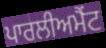
ਪਾਰਲੀਅਮੈਂਟ